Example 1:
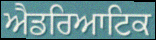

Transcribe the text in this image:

ਐਡਰਿਆਟਿਕ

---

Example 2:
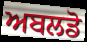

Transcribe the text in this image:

ਅਬਲਡੋ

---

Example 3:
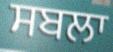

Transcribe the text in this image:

ਸਬਲਾ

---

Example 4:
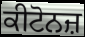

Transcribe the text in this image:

ਕੀਟੋਨਜ਼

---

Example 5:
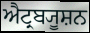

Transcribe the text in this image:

ਐਟ੍ਰਬ੍ਯੂਸ਼ਨ